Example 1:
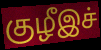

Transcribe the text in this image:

குழீஇச்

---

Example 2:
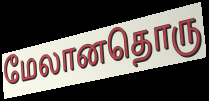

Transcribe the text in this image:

மேலானதொரு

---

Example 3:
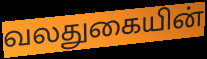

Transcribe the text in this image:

வலதுகையின்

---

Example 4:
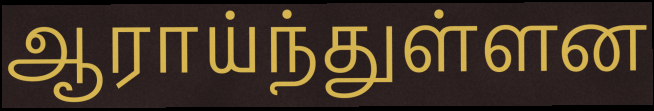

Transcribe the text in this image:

ஆராய்ந்துள்ளன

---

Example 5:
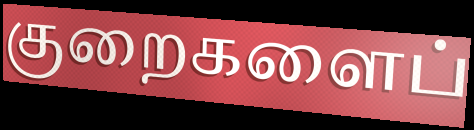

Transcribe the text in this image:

குறைகளைப்